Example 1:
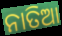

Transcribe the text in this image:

ନାତିଆ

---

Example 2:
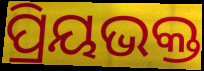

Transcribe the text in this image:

ପ୍ରିୟଭକ୍ତ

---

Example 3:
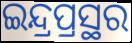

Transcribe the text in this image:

ଇନ୍ଦ୍ରପ୍ରସ୍ଥର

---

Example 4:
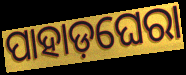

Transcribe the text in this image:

ପାହାଡ଼ଘେରା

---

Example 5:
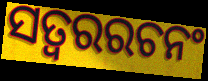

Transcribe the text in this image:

ସତ୍ୱରରଚନଂ